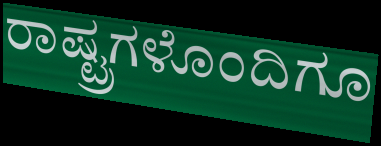
ರಾಷ್ಟ್ರಗಳೊಂದಿಗೂ